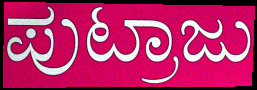
ಪುಟ್ರಾಜು